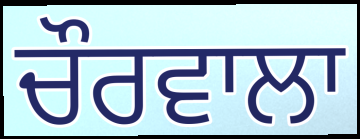
ਚੌਰਵਾਲਾ